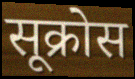
सूक्रोस